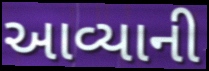
આવ્યાની